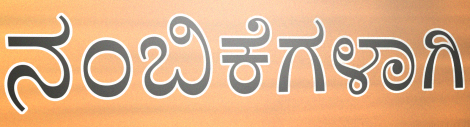
ನಂಬಿಕೆಗಳಾಗಿ